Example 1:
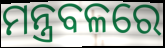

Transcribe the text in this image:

ମନ୍ତ୍ରବଳରେ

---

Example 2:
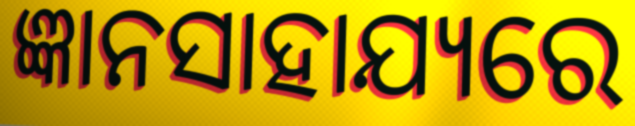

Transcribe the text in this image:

ଜ୍ଞାନସାହାଯ୍ୟରେ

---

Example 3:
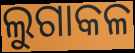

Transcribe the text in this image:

ଲୁଗାକଳ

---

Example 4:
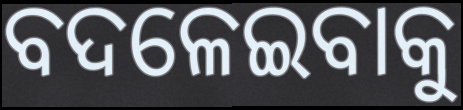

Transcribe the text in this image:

ବଦଳେଇବାକୁ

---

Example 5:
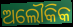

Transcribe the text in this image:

ଅଲୌକିକ